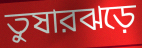
তুষারঝড়ে